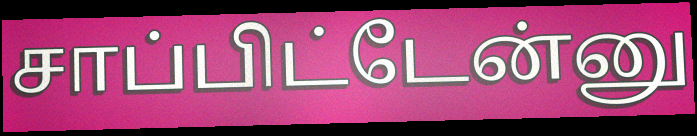
சாப்பிட்டேன்னு